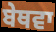
ਬੇਥਵਾ